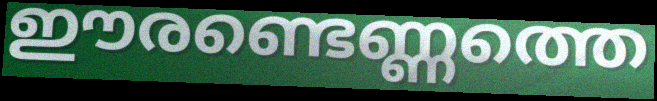
ഈരണ്ടെണ്ണത്തെ